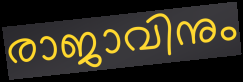
രാജാവിനും